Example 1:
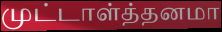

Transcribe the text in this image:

முட்டாள்த்தனமா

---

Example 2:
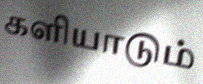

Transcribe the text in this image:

களியாடும்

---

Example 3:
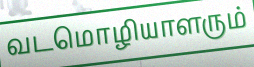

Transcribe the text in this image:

வடமொழியாளரும்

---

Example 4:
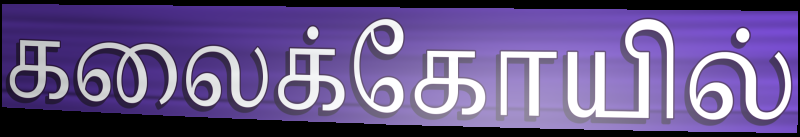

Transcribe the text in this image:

கலைக்கோயில்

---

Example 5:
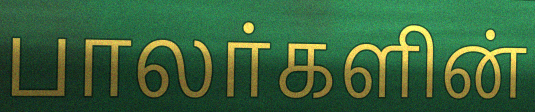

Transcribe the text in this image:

பாலர்களின்